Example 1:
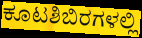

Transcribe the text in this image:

ಕೂಟಶಿಬಿರಗಳಲ್ಲಿ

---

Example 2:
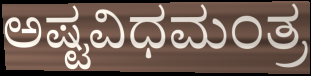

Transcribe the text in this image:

ಅಷ್ಟವಿಧಮಂತ್ರ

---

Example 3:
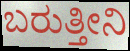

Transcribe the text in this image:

ಬರುತ್ತೀನಿ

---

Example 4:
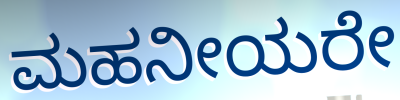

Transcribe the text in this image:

ಮಹನೀಯರೇ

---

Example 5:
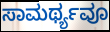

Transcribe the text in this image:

ಸಾಮರ್ಥ್ಯವೂ